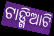
ଟାଙ୍ଗିଆଟି